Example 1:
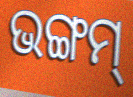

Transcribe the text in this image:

ଭଙ୍ଗମ୍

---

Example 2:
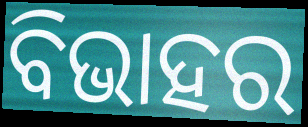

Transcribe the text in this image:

ବିଭାହର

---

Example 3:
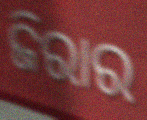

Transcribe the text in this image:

ଜିରାର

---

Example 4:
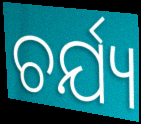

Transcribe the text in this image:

ଚର୍ଯ୍ୟ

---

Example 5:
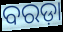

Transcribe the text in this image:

ବରଡ଼ା